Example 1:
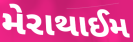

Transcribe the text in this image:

મેરાથાઈમ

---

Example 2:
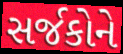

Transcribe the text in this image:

સર્જકોને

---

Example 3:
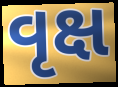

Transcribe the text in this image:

વૃક્ષ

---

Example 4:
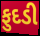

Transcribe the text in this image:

ફુદડી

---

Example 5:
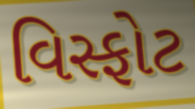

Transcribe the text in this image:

વિસ્ફોટ